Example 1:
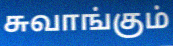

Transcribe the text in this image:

சுவாங்கும்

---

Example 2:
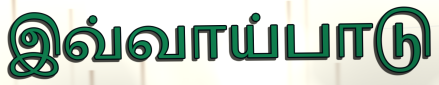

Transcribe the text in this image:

இவ்வாய்பாடு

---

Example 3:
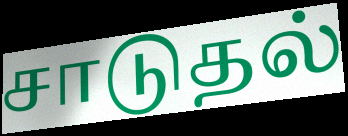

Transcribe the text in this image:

சாடுதல்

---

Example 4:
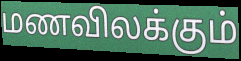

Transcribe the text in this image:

மணவிலக்கும்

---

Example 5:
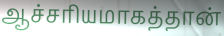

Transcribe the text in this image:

ஆச்சரியமாகத்தான்